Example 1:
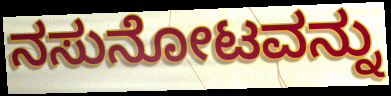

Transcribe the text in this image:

ನಸುನೋಟವನ್ನು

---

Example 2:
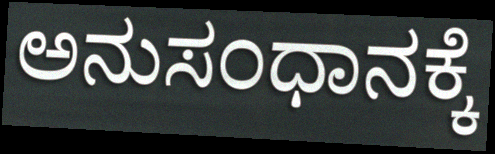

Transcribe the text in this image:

ಅನುಸಂಧಾನಕ್ಕೆ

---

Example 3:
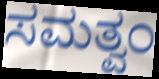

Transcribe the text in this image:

ಸಮತ್ವಂ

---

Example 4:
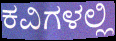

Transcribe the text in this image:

ಕವಿಗಳಲ್ಲಿ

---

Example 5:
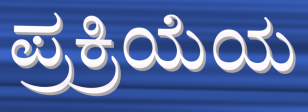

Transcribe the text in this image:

ಪ್ರಕ್ರಿಯೆಯ